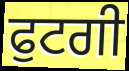
ਫੁਟਗੀ